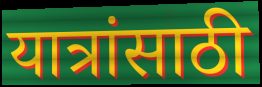
यात्रांसाठी